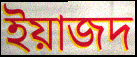
ইয়াজদ